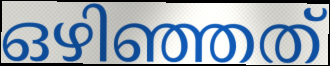
ഒഴിഞ്ഞത്